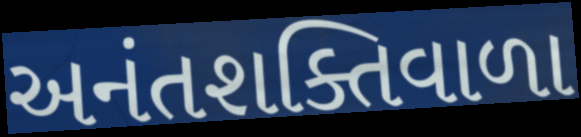
અનંતશક્તિવાળા